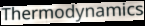
Thermodynamics